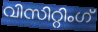
വിസിറ്റിംഗ്